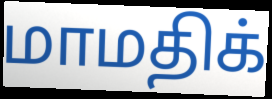
மாமதிக்